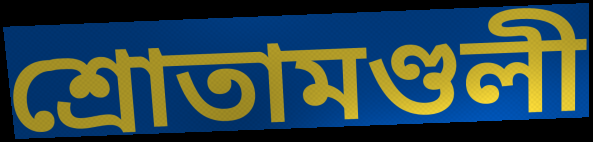
শ্রোতামণ্ডলী